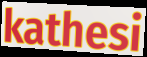
kathesi